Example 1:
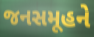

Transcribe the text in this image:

જનસમૂહને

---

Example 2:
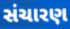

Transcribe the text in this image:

સંચારણ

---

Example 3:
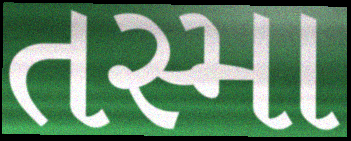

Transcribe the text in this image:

તસ્મા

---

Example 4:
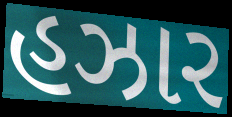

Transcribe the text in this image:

હઝાર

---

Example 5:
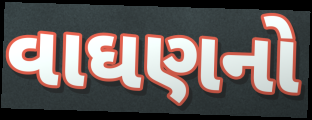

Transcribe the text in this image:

વાઘણનો